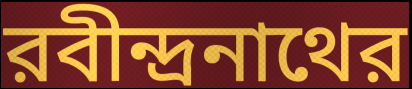
রবীন্দ্রনাথের